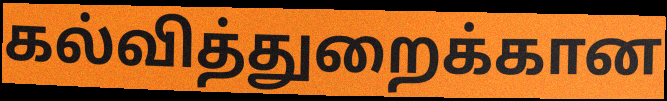
கல்வித்துறைக்கான